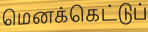
மெனக்கெட்டுப்